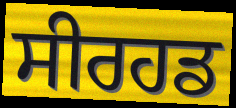
ਸੀਰਹਡ